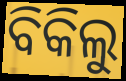
ବିକିଲୁ